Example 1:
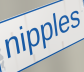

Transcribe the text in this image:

nipples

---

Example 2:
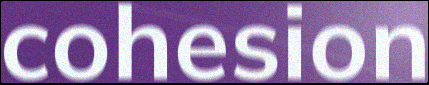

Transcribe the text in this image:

cohesion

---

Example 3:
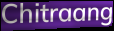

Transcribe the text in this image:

Chitraang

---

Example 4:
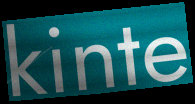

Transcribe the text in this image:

kinte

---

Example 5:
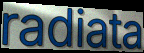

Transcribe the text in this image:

radiata